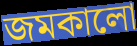
জমকালো